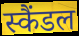
स्कैंडल